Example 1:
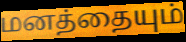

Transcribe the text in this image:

மனத்தையும்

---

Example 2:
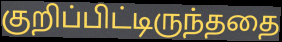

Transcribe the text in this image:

குறிப்பிட்டிருந்ததை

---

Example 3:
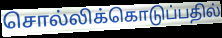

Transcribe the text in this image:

சொல்லிக்கொடுப்பதில்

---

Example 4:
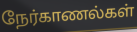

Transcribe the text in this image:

நேர்காணல்கள்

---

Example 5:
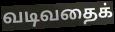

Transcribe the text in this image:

வடிவதைக்